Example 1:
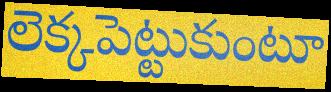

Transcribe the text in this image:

లెక్కపెట్టుకుంటూ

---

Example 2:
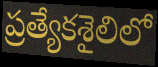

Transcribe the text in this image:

ప్రత్యేకశైలిలో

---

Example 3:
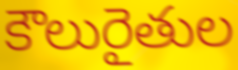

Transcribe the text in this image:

కౌలురైతుల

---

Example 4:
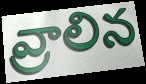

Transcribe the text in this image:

వ్రాలిన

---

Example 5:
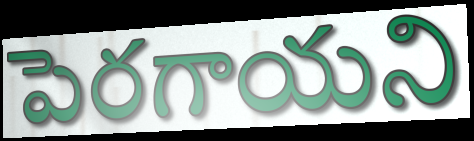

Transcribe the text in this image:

పెరగాయని